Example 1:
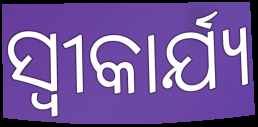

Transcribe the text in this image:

ସ୍ୱୀକାର୍ଯ୍ୟ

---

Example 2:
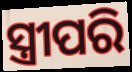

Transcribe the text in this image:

ସ୍ତ୍ରୀପରି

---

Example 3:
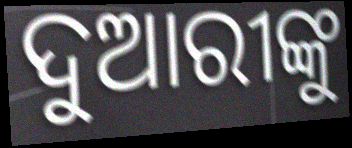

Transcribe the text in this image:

ଦୁଆରୀଙ୍କୁ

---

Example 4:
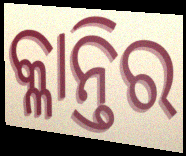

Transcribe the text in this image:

କ୍ଳାନ୍ତିର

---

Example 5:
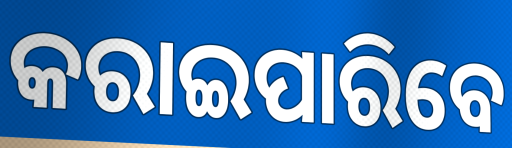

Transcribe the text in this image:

କରାଇପାରିବେ